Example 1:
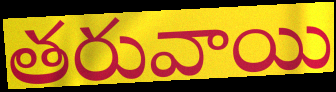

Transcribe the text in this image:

తరువాయి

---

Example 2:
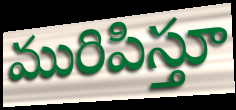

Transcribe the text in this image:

మురిపిస్తూ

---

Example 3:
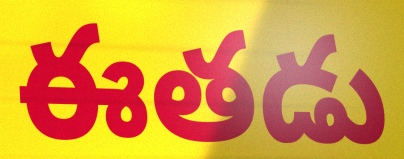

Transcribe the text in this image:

ఈతడు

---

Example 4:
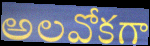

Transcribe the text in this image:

అలవోకగా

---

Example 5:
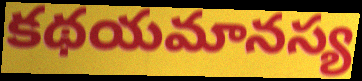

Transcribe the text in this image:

కథయమానస్య